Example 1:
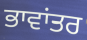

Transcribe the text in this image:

ਭਾਵਾਂਤਰ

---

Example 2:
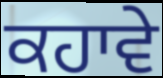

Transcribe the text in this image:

ਕਹਾਵੇ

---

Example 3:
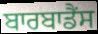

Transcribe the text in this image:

ਬਾਰਬਾਡੈਂਸ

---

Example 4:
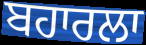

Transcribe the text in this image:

ਬਹਾਰਲਾ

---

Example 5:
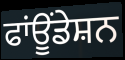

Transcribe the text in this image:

ਫਾਂਊਂਡੇਸ਼ਨ